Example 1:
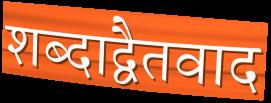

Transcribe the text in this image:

शब्दाद्वैतवाद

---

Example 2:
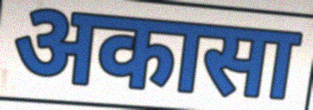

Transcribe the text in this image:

अकासा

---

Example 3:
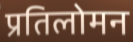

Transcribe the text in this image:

प्रतिलोमन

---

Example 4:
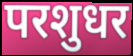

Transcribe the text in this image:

परशुधर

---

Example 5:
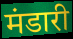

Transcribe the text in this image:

मंडारी